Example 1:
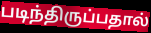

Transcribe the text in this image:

படிந்திருப்பதால்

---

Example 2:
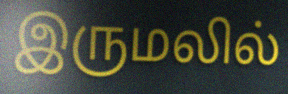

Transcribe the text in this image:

இருமலில்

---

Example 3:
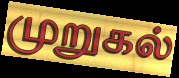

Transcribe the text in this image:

முறுகல்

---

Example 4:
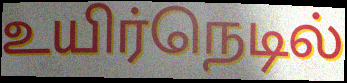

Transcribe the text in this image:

உயிர்நெடில்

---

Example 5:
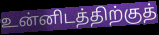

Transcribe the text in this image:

உன்னிடத்திற்குத்